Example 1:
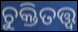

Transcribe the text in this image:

ଚୁକ୍ତିତତ୍ତ୍ଵ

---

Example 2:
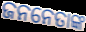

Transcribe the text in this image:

ଜନନେତାଙ୍କ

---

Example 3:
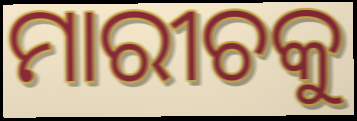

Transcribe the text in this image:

ମାରୀଚକୁ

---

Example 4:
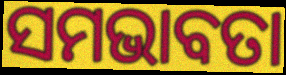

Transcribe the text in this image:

ସମଭାବତା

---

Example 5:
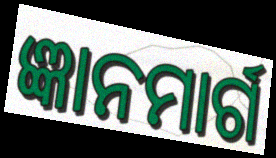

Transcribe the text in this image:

ଜ୍ଞାନମାର୍ଗ